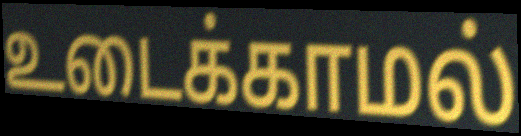
உடைக்காமல்